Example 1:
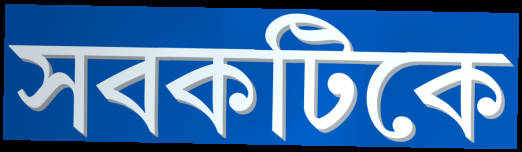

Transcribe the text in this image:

সবকটিকে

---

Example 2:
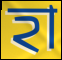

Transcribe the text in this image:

হা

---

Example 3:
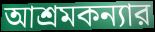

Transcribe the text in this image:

আশ্রমকন্যার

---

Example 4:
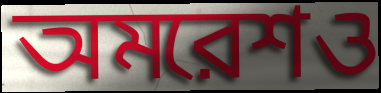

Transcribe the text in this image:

অমরেশও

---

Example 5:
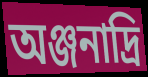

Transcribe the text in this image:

অঞ্জনাদ্রি